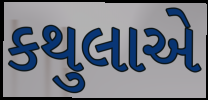
કથુલાએ